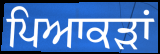
ਪਿਆਕੜਾਂ